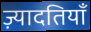
ज़्यादतियाँ